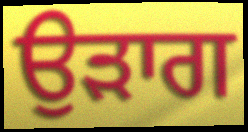
ਉੜਾਗ